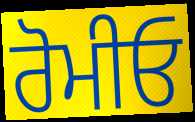
ਰੋਮੀਓ